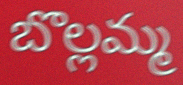
బొల్లమ్మ